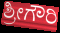
ಶ್ರೀಗೌರಿ